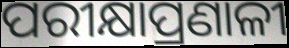
ପରୀକ୍ଷାପ୍ରଣାଳୀ